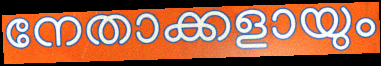
നേതാക്കളായും